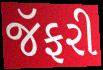
જૅફરી